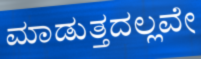
ಮಾಡುತ್ತದಲ್ಲವೇ